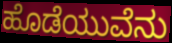
ಹೊಡೆಯುವೆನು